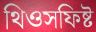
থিওসফিষ্ট